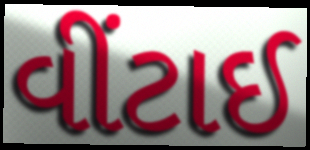
વીંટાઈ